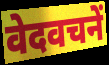
वेदवचनें